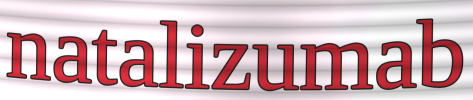
natalizumab